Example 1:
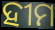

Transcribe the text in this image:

ହୀମ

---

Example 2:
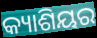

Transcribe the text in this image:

କ୍ୟାଶିୟର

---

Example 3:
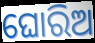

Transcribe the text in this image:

ଘୋରିଅ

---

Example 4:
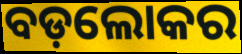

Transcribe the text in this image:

ବଡ଼ଲୋକର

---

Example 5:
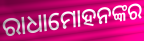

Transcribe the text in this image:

ରାଧାମୋହନଙ୍କର